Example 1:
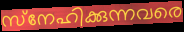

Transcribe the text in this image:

സ്‌നേഹിക്കുന്നവരെ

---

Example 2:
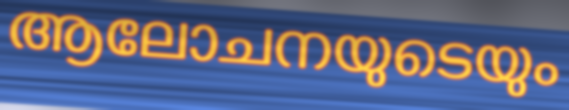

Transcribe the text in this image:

ആലോചനയുടെയും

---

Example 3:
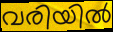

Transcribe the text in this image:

വരിയിൽ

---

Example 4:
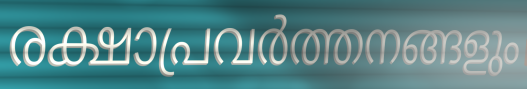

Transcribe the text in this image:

രക്ഷാപ്രവർത്തനങ്ങളും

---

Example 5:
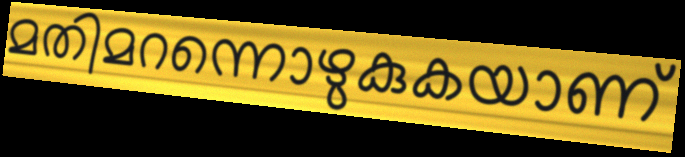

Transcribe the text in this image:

മതിമറന്നൊഴുകുകയാണ്